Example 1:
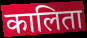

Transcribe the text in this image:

कालिता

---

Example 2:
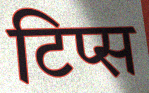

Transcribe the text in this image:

टिप्स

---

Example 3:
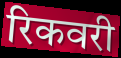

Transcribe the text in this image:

रिकवरी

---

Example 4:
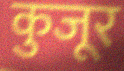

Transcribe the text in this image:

कुजूर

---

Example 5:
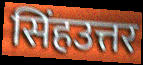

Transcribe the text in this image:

सिंहउत्तर